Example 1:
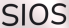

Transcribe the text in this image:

SIOS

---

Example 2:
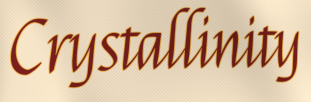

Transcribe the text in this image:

Crystallinity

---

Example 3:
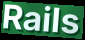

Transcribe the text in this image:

Rails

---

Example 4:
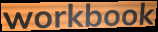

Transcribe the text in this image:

workbook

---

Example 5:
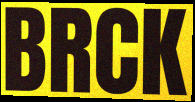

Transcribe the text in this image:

BRCK